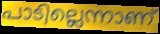
പാടില്ലെന്നാണ്